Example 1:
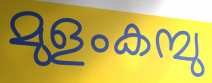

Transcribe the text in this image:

മുളംകമ്പു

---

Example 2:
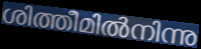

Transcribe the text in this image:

ശിത്തീമിൽനിന്നു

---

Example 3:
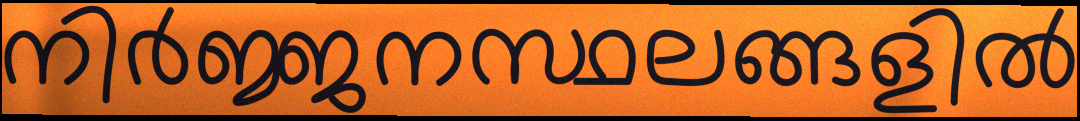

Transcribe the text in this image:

നിർജ്ജനസ്ഥലങ്ങളിൽ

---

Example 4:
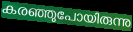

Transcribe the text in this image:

കരഞ്ഞുപോയിരുന്നു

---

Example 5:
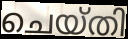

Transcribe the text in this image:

ചെയ്തി